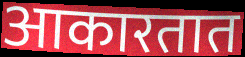
आकारतात